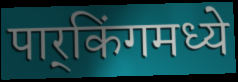
पार्किंगमध्ये